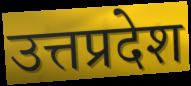
उत्तप्रदेश